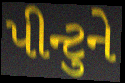
પીન્ટુને